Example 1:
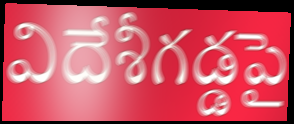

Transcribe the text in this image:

విదేశీగడ్డపై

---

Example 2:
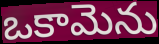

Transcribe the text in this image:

ఒకామెను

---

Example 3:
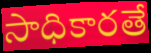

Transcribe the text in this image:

సాధికారతే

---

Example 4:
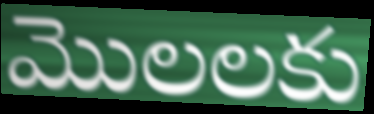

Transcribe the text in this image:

మొలలకు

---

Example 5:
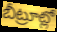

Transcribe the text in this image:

బీట్రూట్లో